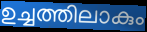
ഉച്ചത്തിലാകും